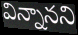
విన్నానని